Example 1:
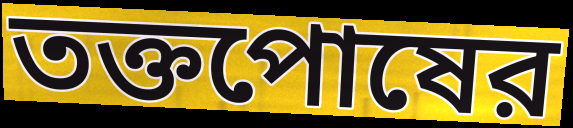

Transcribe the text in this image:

তক্তপোষের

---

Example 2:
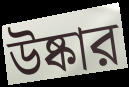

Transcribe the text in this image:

উষ্কার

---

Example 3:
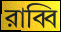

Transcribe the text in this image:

রাব্বি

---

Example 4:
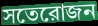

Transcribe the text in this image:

সতেরোজন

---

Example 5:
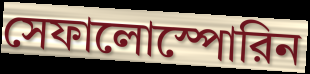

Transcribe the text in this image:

সেফালোস্পোরিন